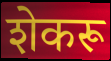
शेकरू